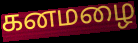
கனமழை